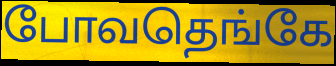
போவதெங்கே